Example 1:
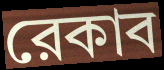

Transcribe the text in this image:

রেকাব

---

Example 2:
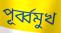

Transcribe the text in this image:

পূর্ব্বমুখ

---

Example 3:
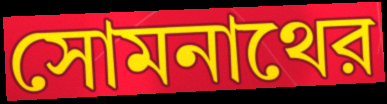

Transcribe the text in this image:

সোমনাথের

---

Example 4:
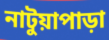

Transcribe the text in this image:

নাটুয়াপাড়া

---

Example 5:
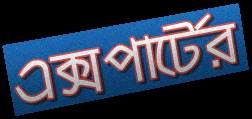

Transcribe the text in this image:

এক্সপার্টের